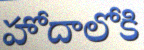
హోదాలోకి